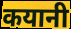
कयानी